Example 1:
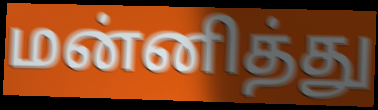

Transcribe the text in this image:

மன்னித்து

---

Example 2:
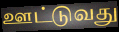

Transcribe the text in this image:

ஊட்டுவது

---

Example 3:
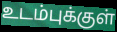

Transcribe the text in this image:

உடம்புக்குள்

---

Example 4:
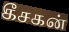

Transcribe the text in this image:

கீசகன்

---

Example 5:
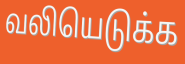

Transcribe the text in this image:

வலியெடுக்க